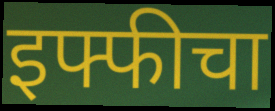
इफ्फीचा